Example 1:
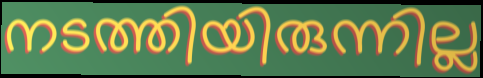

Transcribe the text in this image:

നടത്തിയിരുന്നില്ല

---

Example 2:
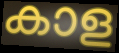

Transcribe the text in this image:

കാള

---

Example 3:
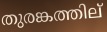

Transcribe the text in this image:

തുരങ്കത്തില്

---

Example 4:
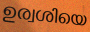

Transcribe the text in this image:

ഉര്വശിയെ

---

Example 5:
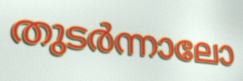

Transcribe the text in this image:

തുടർന്നാലോ